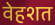
वेहशत